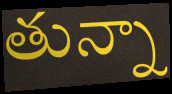
తున్నా